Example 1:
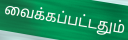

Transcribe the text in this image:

வைக்கப்பட்டதும்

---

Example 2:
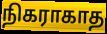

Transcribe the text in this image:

நிகராகாத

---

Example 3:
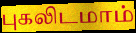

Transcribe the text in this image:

புகலிடமாம்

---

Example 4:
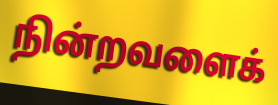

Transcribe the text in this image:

நின்றவளைக்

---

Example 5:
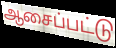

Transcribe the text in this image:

ஆசைப்பட்டு